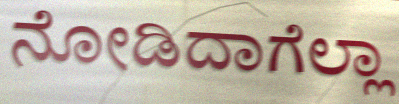
ನೋಡಿದಾಗೆಲ್ಲಾ